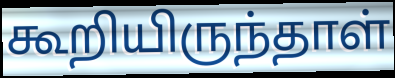
கூறியிருந்தாள்